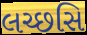
લચ્છસિ